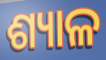
ଶ୍ୟାଳ